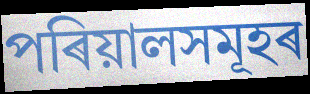
পৰিয়ালসমূহৰ